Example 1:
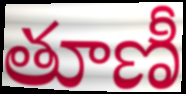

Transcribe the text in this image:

తూణీ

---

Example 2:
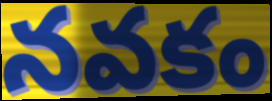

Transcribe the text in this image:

నవకం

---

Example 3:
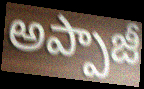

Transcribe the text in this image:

అప్పాజీ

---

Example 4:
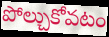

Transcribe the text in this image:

పోల్చుకోవటం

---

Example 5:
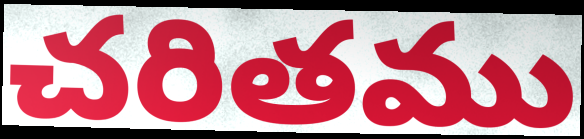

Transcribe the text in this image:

చరితము